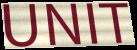
UNIT